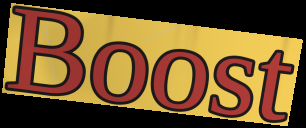
Boost